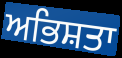
ਅਭਿਸ਼ਤਾ